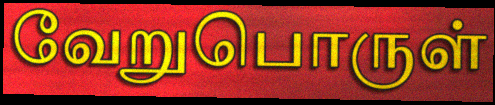
வேறுபொருள்